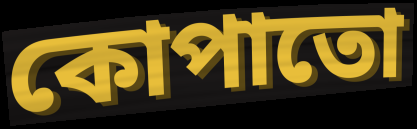
কোপাতো